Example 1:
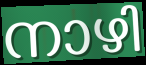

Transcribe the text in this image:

നാഴി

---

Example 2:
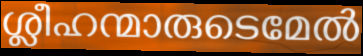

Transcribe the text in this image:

ശ്ലീഹന്മാരുടെമേൽ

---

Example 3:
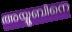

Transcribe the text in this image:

അയ്യൂബിനെ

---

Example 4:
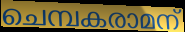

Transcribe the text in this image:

ചെമ്പകരാമന്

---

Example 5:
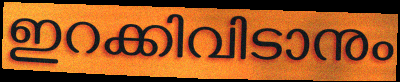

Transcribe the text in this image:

ഇറക്കിവിടാനും